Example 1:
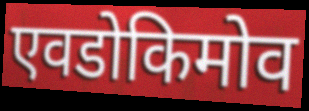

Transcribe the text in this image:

एवडोकिमोव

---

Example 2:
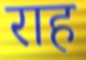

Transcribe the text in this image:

राह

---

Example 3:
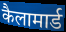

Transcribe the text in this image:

कैलामार्ड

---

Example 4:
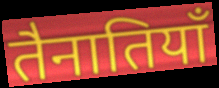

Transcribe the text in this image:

तैनातियाँ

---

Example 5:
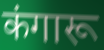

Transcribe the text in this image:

कंगारू